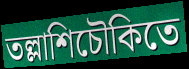
তল্লাশিচৌকিতে